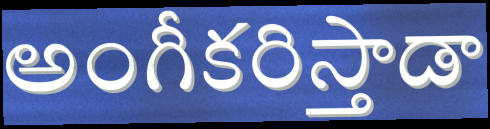
అంగీకరిస్తాడా